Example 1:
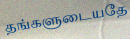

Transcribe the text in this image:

தங்களுடையதே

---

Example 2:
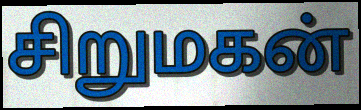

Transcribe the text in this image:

சிறுமகன்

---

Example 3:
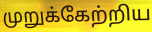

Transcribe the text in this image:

முறுக்கேற்றிய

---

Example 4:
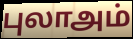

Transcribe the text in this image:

புலாஅம்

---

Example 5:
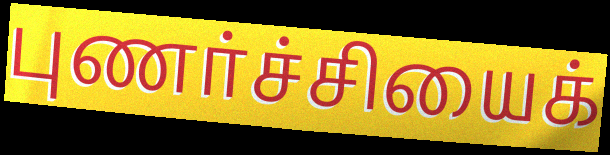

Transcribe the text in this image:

புணர்ச்சியைக்